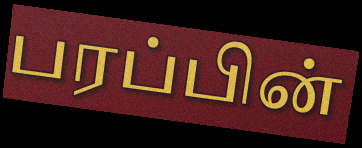
பரப்பின்